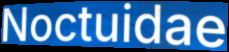
Noctuidae